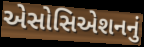
એસોસિએશનનું